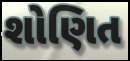
શોણિત